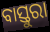
ବାସ୍ତୁରା